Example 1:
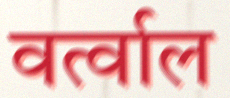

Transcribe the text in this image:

वर्त्वाल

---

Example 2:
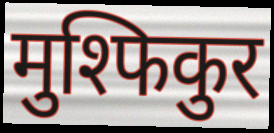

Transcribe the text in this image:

मुश्फिकुर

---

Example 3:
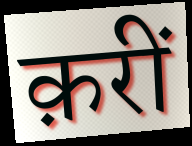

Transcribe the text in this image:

क़रीं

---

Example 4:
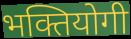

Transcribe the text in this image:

भक्तियोगी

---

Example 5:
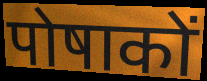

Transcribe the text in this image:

पोषाकों